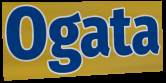
Ogata